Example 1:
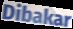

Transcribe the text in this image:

Dibakar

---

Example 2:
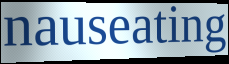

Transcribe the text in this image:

nauseating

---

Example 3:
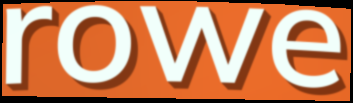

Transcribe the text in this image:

rowe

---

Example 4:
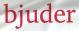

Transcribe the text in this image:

bjuder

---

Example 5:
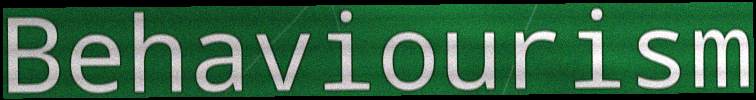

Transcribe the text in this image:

Behaviourism